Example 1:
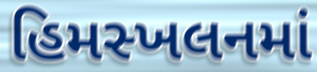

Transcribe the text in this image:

હિમસ્ખલનમાં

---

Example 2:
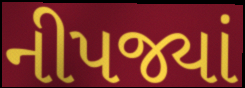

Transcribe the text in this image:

નીપજ્યાં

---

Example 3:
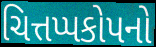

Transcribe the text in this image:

ચિત્તપ્પકોપનો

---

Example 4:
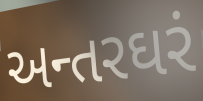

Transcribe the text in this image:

અન્તરઘરં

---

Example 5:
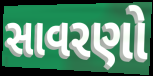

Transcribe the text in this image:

સાવરણો